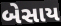
બેસાય